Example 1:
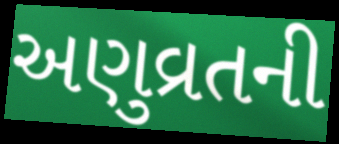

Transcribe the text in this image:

અણુવ્રતની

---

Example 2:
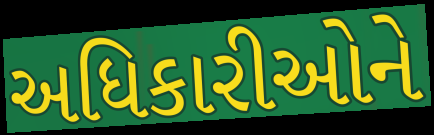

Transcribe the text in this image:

અધિકારીઓને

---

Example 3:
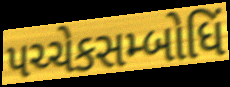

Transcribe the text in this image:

પચ્ચેકસમ્બોધિં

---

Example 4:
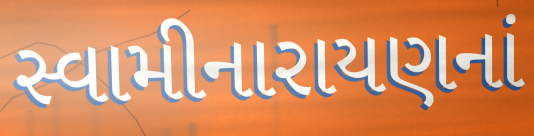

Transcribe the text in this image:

સ્વામીનારાયણનાં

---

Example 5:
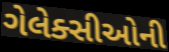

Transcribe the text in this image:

ગેલેક્સીઓની